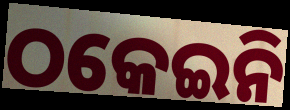
ଠକେଇନି